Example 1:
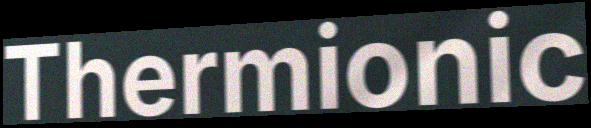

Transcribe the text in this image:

Thermionic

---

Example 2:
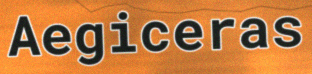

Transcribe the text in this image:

Aegiceras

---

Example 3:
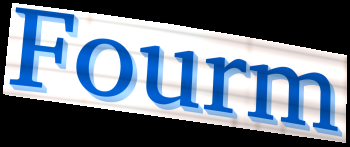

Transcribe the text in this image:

Fourm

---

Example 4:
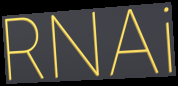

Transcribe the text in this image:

RNAi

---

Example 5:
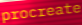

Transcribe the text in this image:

procreate